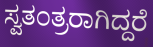
ಸ್ವತಂತ್ರರಾಗಿದ್ದರೆ